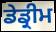
ਡੇਡ੍ਰੀਮ